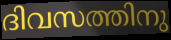
ദിവസത്തിനു